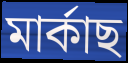
মাৰ্কাছ